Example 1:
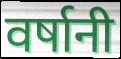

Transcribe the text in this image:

वर्षानी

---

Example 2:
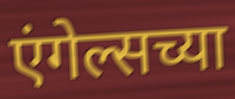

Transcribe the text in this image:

एंगेल्सच्या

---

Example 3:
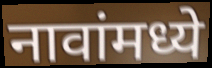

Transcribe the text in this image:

नावांमध्ये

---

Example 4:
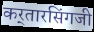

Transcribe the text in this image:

कर्तारसिंगजी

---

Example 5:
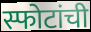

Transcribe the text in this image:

स्फोटांची